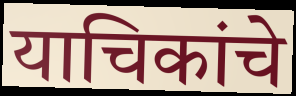
याचिकांचे